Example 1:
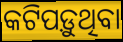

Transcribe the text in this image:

କଟିପଡ଼ୁଥିବା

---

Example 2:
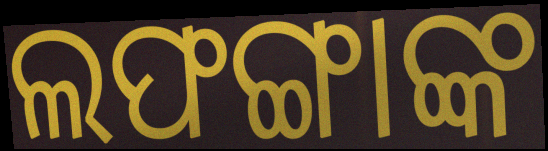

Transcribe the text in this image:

ଲଫଙ୍ଗାଙ୍କ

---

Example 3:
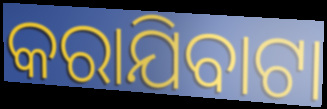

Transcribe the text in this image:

କରାଯିବାଟା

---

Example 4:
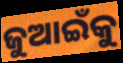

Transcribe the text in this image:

ଜୁଆଇଁକୁ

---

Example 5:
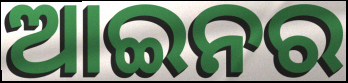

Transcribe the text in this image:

ଆଇନର